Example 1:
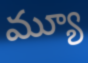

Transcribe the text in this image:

మ్యూ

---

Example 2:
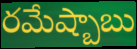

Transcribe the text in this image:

రమేష్బాబు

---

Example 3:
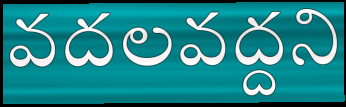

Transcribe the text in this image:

వదలవద్దని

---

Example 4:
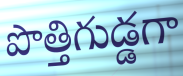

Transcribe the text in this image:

పొత్తిగుడ్డగా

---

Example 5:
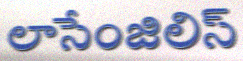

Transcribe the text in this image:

లాసేంజిలిస్